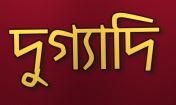
দুগ্যাদি